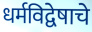
धर्मविद्वेषाचे